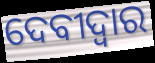
ଦେବୀଦ୍ବାର